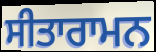
ਸੀਤਾਰਾਮਨ